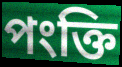
পংক্তি